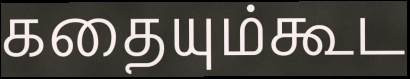
கதையும்கூட